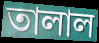
তালাল